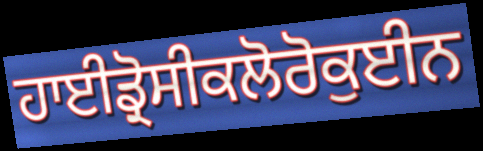
ਹਾਈਡ੍ਰੋਸੀਕਲੋਰੋਕੁਈਨ